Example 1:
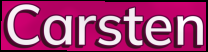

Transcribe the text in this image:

Carsten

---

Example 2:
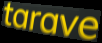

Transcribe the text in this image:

tarave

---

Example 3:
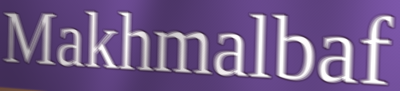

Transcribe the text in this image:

Makhmalbaf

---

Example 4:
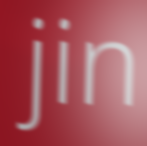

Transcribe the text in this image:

jin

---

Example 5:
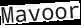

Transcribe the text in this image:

Mavoor